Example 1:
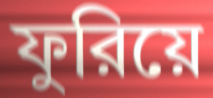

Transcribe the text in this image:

ফুরিয়ে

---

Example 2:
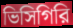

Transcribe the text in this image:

ভিসিগিরি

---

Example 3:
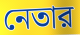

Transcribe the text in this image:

নেতার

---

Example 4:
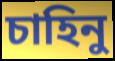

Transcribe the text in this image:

চাহিনু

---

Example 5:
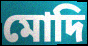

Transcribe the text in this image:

মোদি